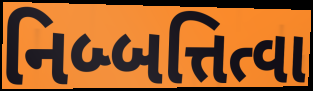
નિબ્બત્તિત્વા